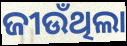
ଜୀଉଁଥିଲା